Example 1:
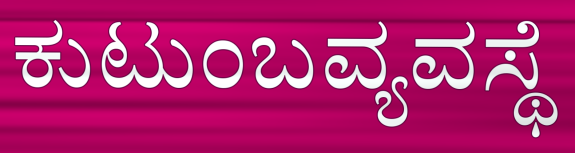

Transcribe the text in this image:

ಕುಟುಂಬವ್ಯವಸ್ಥೆ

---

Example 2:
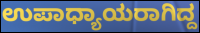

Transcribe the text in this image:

ಉಪಾಧ್ಯಾಯರಾಗಿದ್ದ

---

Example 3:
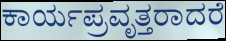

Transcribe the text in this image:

ಕಾರ್ಯಪ್ರವೃತ್ತರಾದರೆ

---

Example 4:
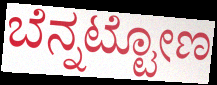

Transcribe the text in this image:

ಬೆನ್ನಟ್ಟೋಣ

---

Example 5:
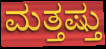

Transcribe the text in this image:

ಮತ್ತಷ್ತು